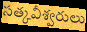
సత్కవీశ్వరులు